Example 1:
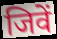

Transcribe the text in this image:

जिवें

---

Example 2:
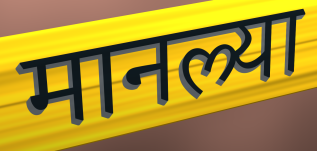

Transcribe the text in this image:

मानल्या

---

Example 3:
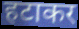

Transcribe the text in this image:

हटाकर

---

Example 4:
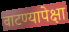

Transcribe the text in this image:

वाटण्यापेक्षा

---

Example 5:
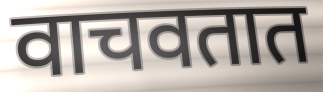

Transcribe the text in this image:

वाचवतात